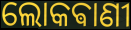
ଲୋକଵାଣୀ